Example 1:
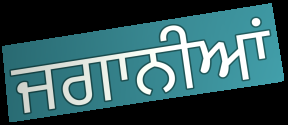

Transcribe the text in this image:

ਜਗਾਨੀਆਂ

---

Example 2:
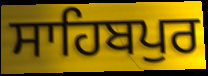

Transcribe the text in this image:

ਸਾਹਿਬਪੁਰ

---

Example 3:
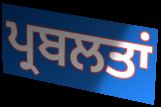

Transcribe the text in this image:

ਪ੍ਰਬਲਤਾਂ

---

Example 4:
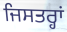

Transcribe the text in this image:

ਜਿਸਤਰ੍ਹਾਂ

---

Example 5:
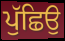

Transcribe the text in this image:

ਪੁੱਛਿਉ